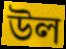
উল